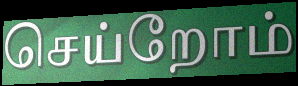
செய்றோம்